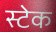
स्टेक